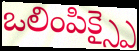
ఒలింపిక్స్పై